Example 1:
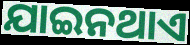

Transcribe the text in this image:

ଯାଇନଥାଏ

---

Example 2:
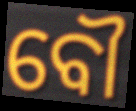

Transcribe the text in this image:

ବୌ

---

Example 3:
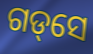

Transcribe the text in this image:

ଗଡ୍‌ସେ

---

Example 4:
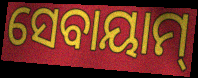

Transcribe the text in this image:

ସେବାୟାମ୍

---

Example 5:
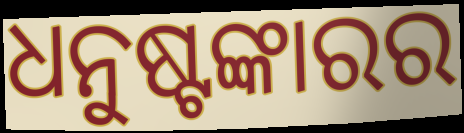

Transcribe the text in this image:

ଧନୁଷ୍ଟଙ୍କାରର